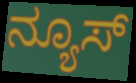
ನ್ಯೂಸ್